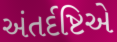
અંતર્દષ્ટિએ